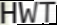
HWT